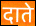
दाते